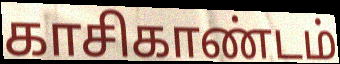
காசிகாண்டம்